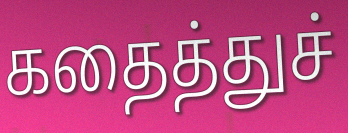
கதைத்துச்